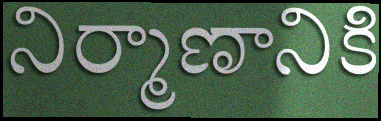
నిర్మాణానికి